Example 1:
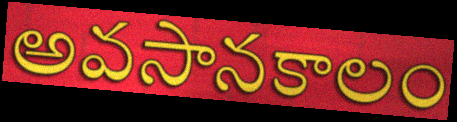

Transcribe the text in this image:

అవసానకాలం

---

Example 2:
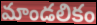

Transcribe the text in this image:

మాండలికం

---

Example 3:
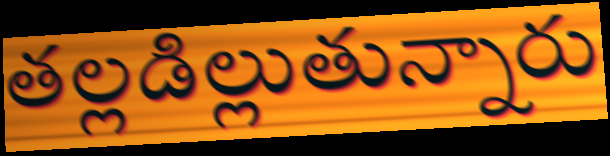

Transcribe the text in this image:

తల్లడిల్లుతున్నారు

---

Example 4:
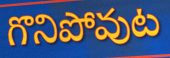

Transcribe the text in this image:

గొనిపోవుట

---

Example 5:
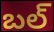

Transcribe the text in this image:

బల్